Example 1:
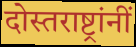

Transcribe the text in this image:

दोस्तराष्ट्रांनीं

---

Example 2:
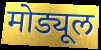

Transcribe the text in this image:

मोड्यूल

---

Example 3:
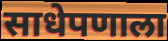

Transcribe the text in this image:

साधेपणाला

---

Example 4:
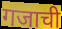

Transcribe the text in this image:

गजाची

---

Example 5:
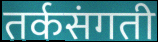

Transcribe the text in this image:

तर्कसंगती